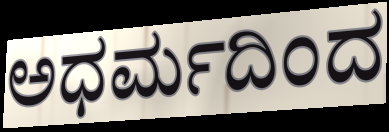
ಅಧರ್ಮದಿಂದ